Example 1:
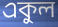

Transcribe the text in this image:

একুল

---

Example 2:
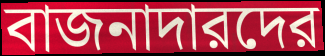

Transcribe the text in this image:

বাজনাদারদের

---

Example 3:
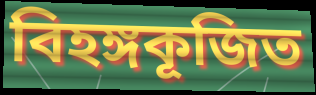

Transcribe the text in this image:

বিহঙ্গকূজিত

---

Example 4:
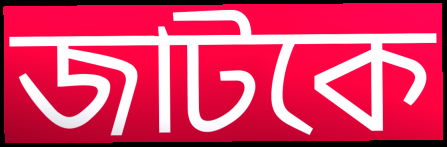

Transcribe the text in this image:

জাটকে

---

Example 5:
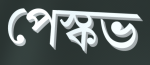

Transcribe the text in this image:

পেস্কভ